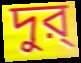
দুর্